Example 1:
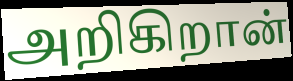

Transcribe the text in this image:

அறிகிறான்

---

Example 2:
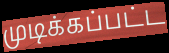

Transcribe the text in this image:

முடிக்கப்பட்ட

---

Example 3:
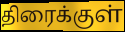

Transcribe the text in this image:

திரைக்குள்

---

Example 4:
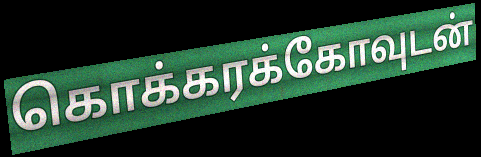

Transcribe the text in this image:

கொக்கரக்கோவுடன்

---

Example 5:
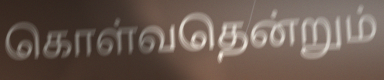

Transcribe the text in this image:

கொள்வதென்றும்